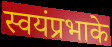
स्वयंप्रभाके